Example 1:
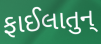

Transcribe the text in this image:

ફાઈલાતુન્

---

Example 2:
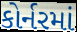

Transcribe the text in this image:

કોર્નરમાં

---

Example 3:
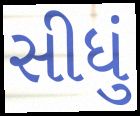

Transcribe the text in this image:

સીધું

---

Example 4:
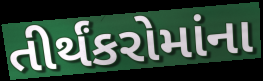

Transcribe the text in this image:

તીર્થંકરોમાંના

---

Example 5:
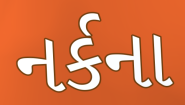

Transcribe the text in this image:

નર્કના